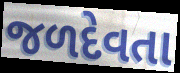
જળદેવતા